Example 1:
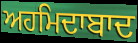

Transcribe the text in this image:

ਅਹਮਿਦਾਬਾਦ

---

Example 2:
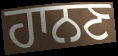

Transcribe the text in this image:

ਹਾਨਣ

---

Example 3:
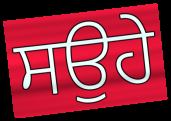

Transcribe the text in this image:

ਸਉਹੇ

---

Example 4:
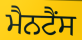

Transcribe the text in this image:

ਮੈਨਟੈਂਸ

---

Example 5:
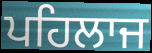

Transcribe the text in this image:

ਪਹਿਲਾਜ